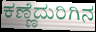
ಕಣ್ಣೆದುರಿಗಿನ